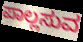
ಪಾಲ್ಲಸುವ